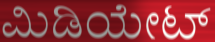
ಮಿಡಿಯೇಟ್